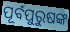
ପୂର୍ବପୁରୁଷଙ୍କ